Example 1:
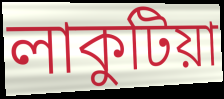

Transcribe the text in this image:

লাকুটিয়া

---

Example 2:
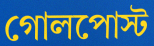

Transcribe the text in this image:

গোলপোস্ট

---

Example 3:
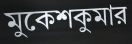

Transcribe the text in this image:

মুকেশকুমার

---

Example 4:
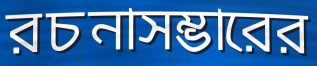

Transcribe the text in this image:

রচনাসম্ভারের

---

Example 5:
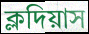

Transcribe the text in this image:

ক্লদিয়াস